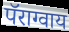
पॅराग्वाय